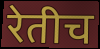
रेतीच